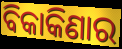
ବିକାକିଣାର